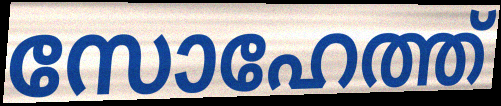
സോഹേത്ത്